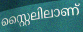
സ്റ്റൈലിലാണ്